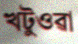
খটুওৱা